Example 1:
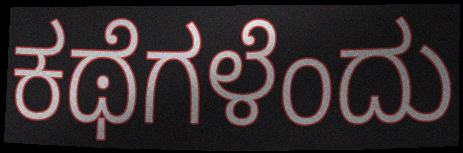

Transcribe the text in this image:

ಕಥೆಗಳೆಂದು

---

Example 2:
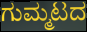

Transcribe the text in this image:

ಗುಮ್ಮಟದ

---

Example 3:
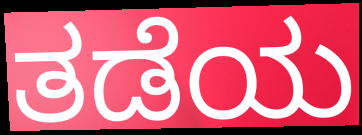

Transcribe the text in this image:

ತಡೆಯ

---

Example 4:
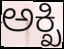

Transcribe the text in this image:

ಅಕ್ಖಿ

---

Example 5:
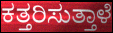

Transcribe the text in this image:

ಕತ್ತರಿಸುತ್ತಾಳೆ